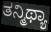
ತನ್ಮಿಥ್ಯಾ